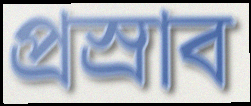
প্রস্রাব